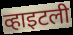
व्हाइटली